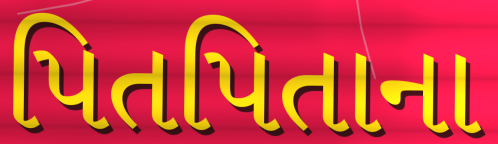
પિતપિતાના